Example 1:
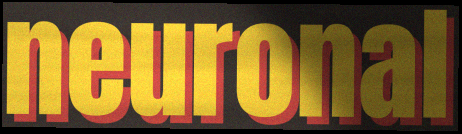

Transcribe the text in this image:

neuronal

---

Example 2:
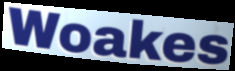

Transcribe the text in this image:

Woakes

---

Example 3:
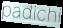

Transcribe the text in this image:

padichi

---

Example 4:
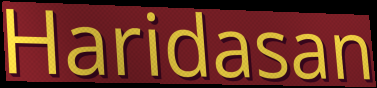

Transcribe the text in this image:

Haridasan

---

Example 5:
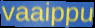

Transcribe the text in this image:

vaaippu